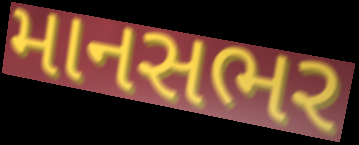
માનસભર